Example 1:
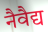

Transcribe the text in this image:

नैवैद्य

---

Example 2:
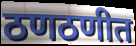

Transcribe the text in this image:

ठणठणीत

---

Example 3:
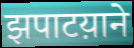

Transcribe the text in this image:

झपाटय़ाने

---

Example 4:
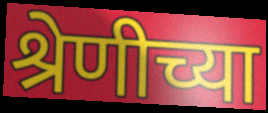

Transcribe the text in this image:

श्रेणीच्या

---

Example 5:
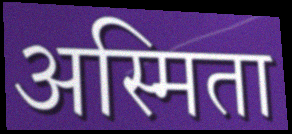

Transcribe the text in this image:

अस्मिता